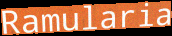
Ramularia